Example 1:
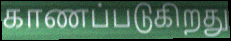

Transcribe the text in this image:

காணப்படுகிறது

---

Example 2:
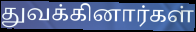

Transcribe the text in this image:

துவக்கினார்கள்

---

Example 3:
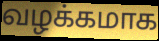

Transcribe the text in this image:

வழக்கமாக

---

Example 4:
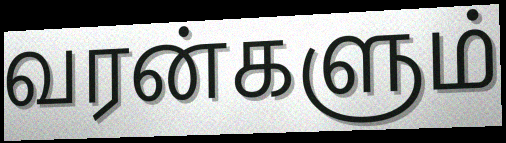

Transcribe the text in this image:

வரன்களும்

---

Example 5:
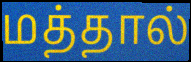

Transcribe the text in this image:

மத்தால்